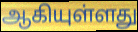
ஆகியுள்ளது